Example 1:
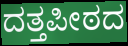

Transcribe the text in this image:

ದತ್ತಪೀಠದ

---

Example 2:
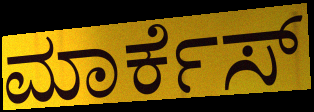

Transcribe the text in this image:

ಮಾರ್ಕೆಸ್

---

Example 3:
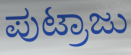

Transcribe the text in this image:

ಪುಟ್ರಾಜು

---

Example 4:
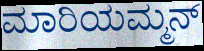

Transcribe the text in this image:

ಮಾರಿಯಮ್ಮನ್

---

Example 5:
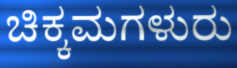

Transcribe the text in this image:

ಚಿಕ್ಕಮಗಳುರು